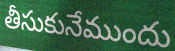
తీసుకునేముందు